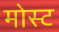
मोस्ट